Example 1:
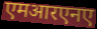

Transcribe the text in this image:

एमआरएनए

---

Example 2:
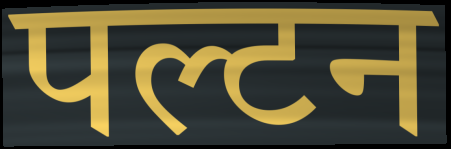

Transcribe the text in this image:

पल्टन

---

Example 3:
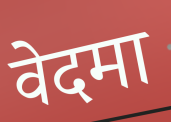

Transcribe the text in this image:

वेदमा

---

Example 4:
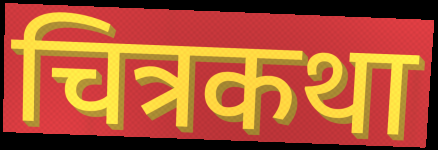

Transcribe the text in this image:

चित्रकथा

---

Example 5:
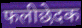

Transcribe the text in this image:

फलीछेदक